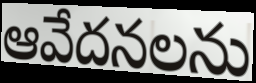
ఆవేదనలను